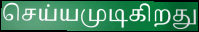
செய்யமுடிகிறது